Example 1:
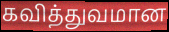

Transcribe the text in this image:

கவித்துவமான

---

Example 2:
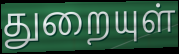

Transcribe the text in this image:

துறையுள்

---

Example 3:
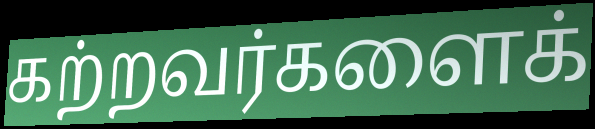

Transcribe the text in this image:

கற்றவர்களைக்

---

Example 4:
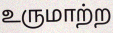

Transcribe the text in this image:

உருமாற்ற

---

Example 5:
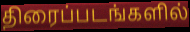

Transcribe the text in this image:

திரைப்படங்களில்